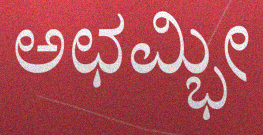
ಅಛಮ್ಭೀ